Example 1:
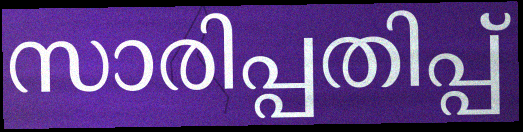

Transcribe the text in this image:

സാരിപ്പതിപ്പ്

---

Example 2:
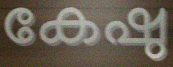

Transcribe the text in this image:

കേഷു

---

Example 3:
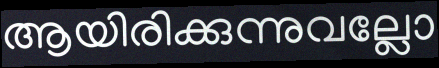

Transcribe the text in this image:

ആയിരിക്കുന്നുവല്ലോ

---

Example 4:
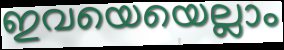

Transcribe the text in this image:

ഇവയെയെല്ലാം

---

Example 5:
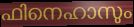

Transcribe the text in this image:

ഫിനെഹാസും